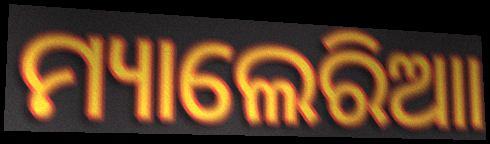
ମ୍ୟାଲେରିଆା